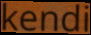
kendi